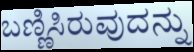
ಬಣ್ಣಿಸಿರುವುದನ್ನು